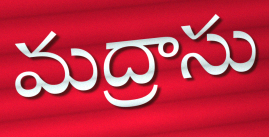
మద్రాసు